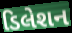
ડિલેશન